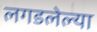
लगडलेल्या